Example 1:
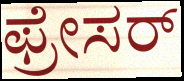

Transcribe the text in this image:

ಫ್ರೇಸರ್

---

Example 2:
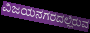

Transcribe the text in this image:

ವಿಜಯನಗರದಲ್ಲಿರುವ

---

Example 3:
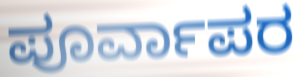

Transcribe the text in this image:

ಪೂರ್ವಾಪರ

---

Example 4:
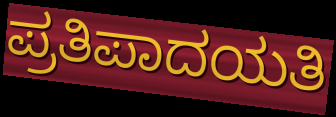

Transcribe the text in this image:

ಪ್ರತಿಪಾದಯತಿ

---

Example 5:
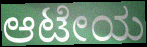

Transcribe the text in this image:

ಆಟೇಯ